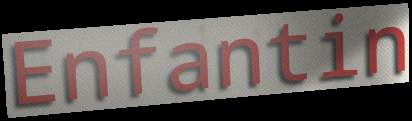
Enfantin